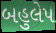
બહુલેપ